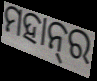
ମହାନ୍‌ର